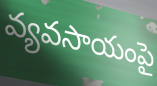
వ్యవసాయంపై